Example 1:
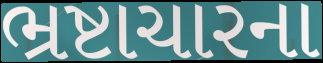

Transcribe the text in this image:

ભ્રષ્ટાચારના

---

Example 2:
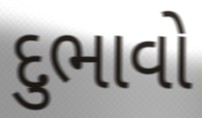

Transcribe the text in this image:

દુભાવો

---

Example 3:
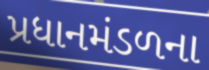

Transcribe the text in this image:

પ્રધાનમંડળના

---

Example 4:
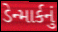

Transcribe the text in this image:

ડેન્માર્કનું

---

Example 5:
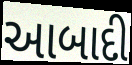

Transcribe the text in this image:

આબાદી